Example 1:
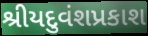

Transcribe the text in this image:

શ્રીયદુવંશપ્રકાશ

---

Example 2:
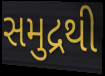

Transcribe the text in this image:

સમુદ્રથી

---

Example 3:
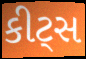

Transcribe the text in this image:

કીટ્સ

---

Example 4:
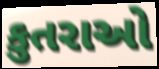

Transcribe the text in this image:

કુતરાઓ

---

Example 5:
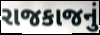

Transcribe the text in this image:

રાજકાજનું